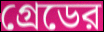
গ্রেডের